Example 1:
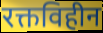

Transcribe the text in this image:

रक्तविहीन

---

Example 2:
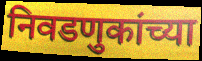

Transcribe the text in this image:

निवडणुकांच्या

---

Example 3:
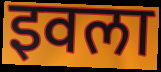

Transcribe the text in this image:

इवला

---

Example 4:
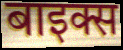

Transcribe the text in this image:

बाइक्स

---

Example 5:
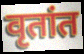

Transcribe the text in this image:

वृतांत